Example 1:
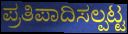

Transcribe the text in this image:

ಪ್ರತಿಪಾದಿಸಲ್ಪಟ್ಟ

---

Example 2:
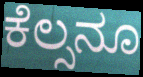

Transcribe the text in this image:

ಕೆಲ್ಸನೂ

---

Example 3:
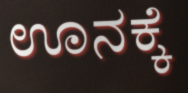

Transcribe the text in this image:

ಊನಕ್ಕೆ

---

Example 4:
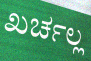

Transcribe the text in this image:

ಖರ್ಚಲ್ಲ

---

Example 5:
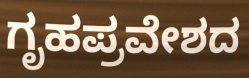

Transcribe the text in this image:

ಗೃಹಪ್ರವೇಶದ